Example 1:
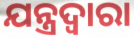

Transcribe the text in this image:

ଯନ୍ତ୍ରଦ୍ଵାରା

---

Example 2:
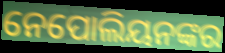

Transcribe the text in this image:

ନେପୋଲିୟନଙ୍କର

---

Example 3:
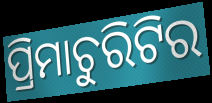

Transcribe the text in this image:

ପ୍ରିମାଚୁରିଟିର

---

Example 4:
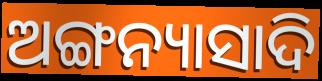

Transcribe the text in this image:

ଅଙ୍ଗନ୍ୟାସାଦି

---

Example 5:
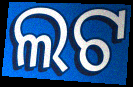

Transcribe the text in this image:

ଲଟ